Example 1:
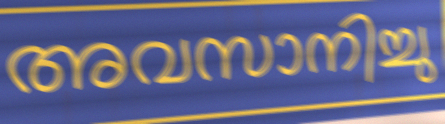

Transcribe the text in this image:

അവസാനിച്ചു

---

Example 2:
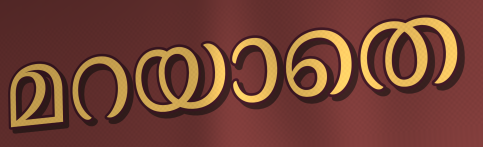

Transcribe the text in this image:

മറയാതെ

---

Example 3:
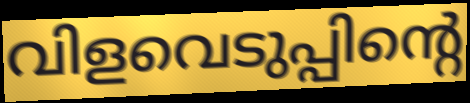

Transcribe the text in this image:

വിളവെടുപ്പിന്റെ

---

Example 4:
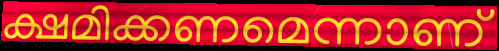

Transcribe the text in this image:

ക്ഷമിക്കണമെന്നാണ്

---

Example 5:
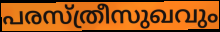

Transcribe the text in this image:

പരസ്ത്രീസുഖവും